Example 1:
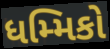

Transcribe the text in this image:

ધમ્મિકો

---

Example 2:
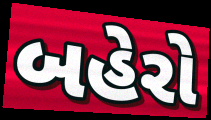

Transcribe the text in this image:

બહેરો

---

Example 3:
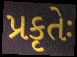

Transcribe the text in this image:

પ્રકૃતેઃ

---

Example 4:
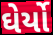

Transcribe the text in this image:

ઘેર્યો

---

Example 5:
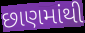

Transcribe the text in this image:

છાણમાંથી